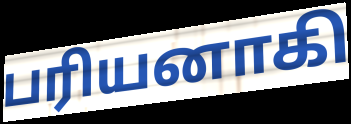
பரியனாகி